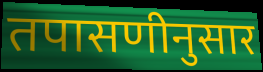
तपासणीनुसार